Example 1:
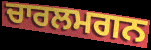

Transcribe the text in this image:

ਚਾਰਲਮਗਨ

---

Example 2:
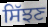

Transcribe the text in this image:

ਸਿੱਝਣ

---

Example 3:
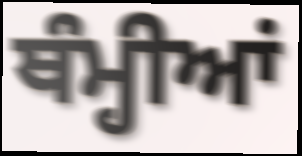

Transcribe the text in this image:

ਥੰਮ੍ਹੀਆਂ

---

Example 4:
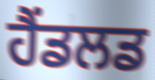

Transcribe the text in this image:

ਹੈਂਡਲਡ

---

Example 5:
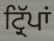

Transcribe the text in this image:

ਟ੍ਰਿੱਪਾਂ